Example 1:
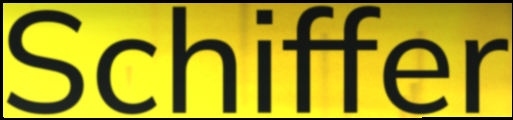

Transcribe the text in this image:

Schiffer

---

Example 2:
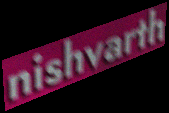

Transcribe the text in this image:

nishvarth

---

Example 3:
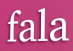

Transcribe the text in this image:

fala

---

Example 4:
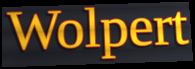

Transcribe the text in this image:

Wolpert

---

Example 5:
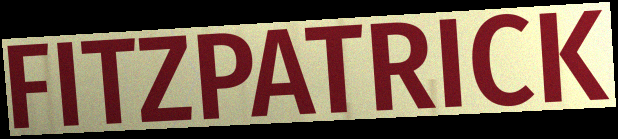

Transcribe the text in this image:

FITZPATRICK